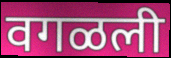
वगळली